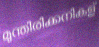
മുന്തിരിക്കനികള്